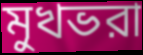
মুখভরা